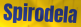
Spirodela